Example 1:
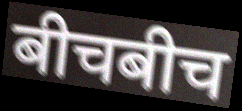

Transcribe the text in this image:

बीचबीच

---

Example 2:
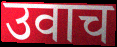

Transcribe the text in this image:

उवाच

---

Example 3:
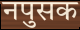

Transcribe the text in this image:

नपुसक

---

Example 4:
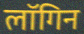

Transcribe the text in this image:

लॉगिन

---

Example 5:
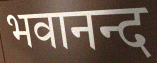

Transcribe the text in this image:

भवानन्द